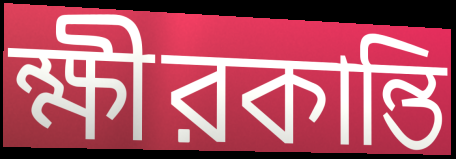
ক্ষীরকান্তি